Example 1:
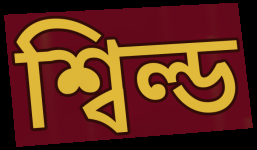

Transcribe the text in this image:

শ্বিল্ড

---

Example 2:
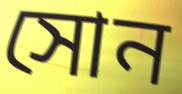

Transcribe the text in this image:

সোন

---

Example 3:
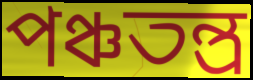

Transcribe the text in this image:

পঞ্চতন্ত্ৰ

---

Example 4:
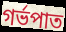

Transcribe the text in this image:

গৰ্ভপাত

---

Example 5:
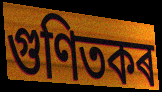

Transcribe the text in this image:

গুণিতকৰ